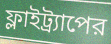
ফ্লাইট্র্যাপের